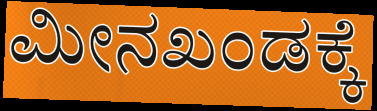
ಮೀನಖಂಡಕ್ಕೆ